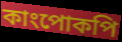
কাংপোকপি